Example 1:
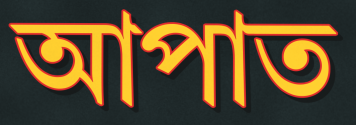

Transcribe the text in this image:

আপাত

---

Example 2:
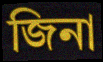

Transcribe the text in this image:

জিনা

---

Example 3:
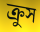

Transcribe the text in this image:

ক্রুস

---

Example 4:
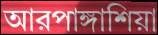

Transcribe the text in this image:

আরপাঙ্গাশিয়া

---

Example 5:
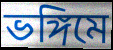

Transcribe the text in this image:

ভঙ্গিমে